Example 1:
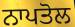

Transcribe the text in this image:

ਨਾਪਤੋਲ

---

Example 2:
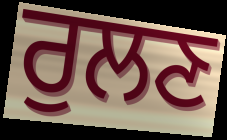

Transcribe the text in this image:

ਰੁਲਣ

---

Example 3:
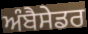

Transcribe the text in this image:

ਅੰਬੈਸੇਡਰ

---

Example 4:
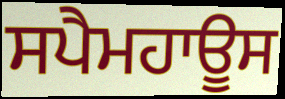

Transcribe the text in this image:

ਸਪੈਮਹਾਊਸ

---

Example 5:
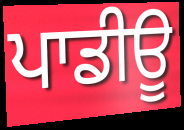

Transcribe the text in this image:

ਪਾਡੀਊ